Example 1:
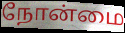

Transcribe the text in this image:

நோன்மை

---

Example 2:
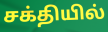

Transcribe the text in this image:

சக்தியில்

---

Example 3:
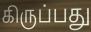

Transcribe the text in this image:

கிருப்பது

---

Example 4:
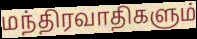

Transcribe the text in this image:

மந்திரவாதிகளும்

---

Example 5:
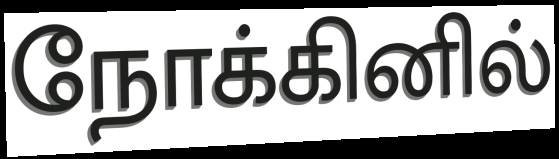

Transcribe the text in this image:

நோக்கினில்